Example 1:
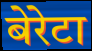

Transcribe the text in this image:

बेरेटा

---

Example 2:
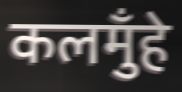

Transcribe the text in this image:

कलमुँहे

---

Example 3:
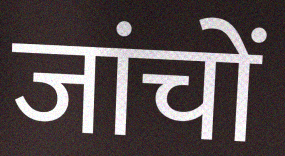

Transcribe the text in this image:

जांचों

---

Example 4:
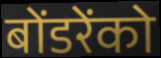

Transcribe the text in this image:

बोंडरेंको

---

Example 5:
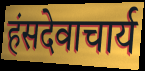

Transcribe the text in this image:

हंसदेवाचार्य